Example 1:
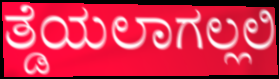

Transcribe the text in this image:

ತ್ಡೆಯಲಾಗಲ್ಲಲಿ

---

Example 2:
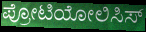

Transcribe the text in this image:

ಪ್ರೋಟಿಯೋಲಿಸಿಸ್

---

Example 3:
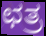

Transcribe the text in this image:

ಛತ್ರ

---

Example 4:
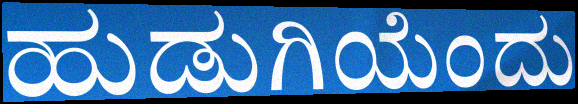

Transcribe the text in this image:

ಹುಡುಗಿಯೆಂದು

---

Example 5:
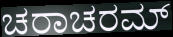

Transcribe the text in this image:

ಚರಾಚರಮ್